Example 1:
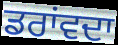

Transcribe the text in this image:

ਡਰਾਂਵਦਾ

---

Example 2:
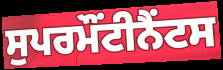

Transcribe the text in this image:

ਸੁਪਰਮੌਂਟੀਨੈਂਟਸ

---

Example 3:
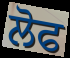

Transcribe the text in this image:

ਲੋਫ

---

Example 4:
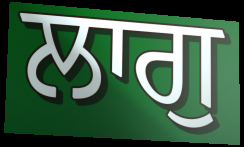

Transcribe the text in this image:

ਲਾਗੁ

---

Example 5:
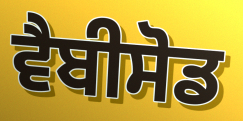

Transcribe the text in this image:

ਵੈਬੀਸੋਡ